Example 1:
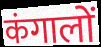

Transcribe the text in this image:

कंगालों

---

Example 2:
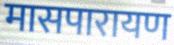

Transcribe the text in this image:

मासपारायण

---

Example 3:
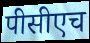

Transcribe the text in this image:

पीसीएच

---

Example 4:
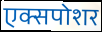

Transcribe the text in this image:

एक्सपोशर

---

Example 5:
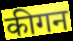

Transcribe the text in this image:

कीगन